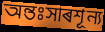
অন্তঃসাৰশূন্য